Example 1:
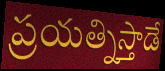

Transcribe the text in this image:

ప్రయత్నిస్తాడే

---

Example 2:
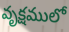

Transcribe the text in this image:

వృక్షములో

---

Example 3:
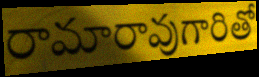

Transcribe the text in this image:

రామారావుగారితో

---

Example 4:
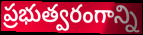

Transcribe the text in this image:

ప్రభుత్వరంగాన్ని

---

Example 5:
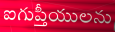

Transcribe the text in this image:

ఐగుప్తీయులను